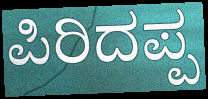
ಪಿರಿದಪ್ಪ